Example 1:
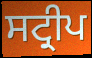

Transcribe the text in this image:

ਸਟ੍ਰੀਪ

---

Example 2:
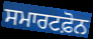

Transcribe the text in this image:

ਸਮਾਰਟਫ਼ੋਨ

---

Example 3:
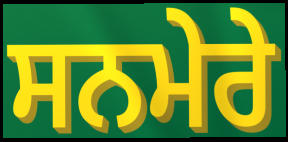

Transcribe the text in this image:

ਸਨਮੇਰੇ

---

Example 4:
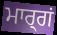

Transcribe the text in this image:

ਮਾਰ੍ਗਂ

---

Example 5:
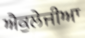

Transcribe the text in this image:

ਐਕੁਲੇਜੀਆ